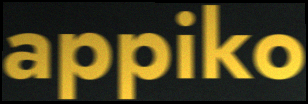
appiko